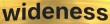
wideness